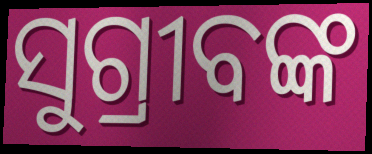
ସୁଗ୍ରୀବଙ୍କ